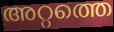
അറ്റത്തെ